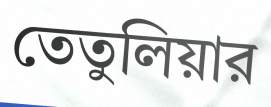
তেতুলিয়ার